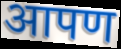
आपण